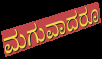
ಮಗುವಾದರೂ